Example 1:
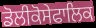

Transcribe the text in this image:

ਡੋਲੀਕੋਸੇਫਾਲਿਕ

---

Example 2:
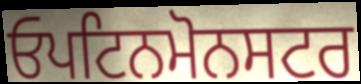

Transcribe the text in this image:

ਓਪਟਿਨਮੋਨਸਟਰ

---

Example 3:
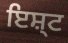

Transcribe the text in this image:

ਇਸ਼੍ਟ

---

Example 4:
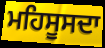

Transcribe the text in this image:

ਮਹਿਸੂਸਦਾ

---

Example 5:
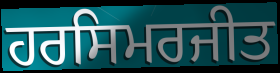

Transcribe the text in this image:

ਹਰਸਿਮਰਜੀਤ